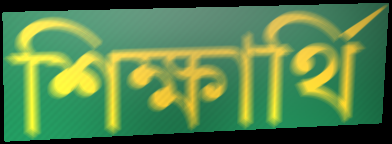
শিক্ষার্থি